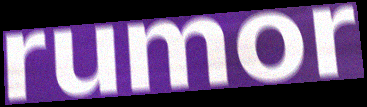
rumor